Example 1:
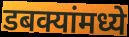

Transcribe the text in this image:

डबक्यांमध्ये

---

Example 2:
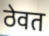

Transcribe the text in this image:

ठेवत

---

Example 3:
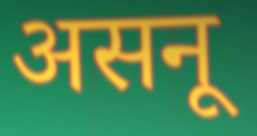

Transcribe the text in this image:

असनू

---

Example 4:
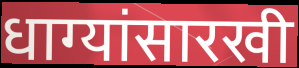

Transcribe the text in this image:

धाग्यांसारखी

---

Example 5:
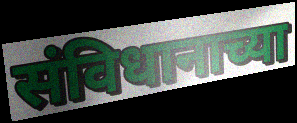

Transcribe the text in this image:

संविधानाच्या